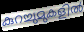
കുറച്ചുമുകളിൽ